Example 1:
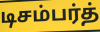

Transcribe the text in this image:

டிசம்பர்த்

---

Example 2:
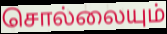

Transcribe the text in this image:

சொல்லையும்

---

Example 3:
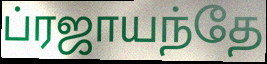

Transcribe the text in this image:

ப்ரஜாயந்தே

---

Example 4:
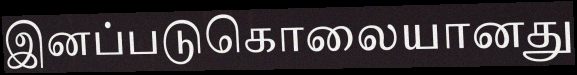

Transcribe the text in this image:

இனப்படுகொலையானது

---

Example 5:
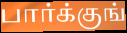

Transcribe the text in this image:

பார்க்குங்